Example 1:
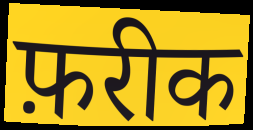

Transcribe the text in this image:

फ़रीक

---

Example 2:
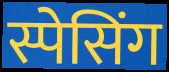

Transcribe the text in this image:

स्पेसिंग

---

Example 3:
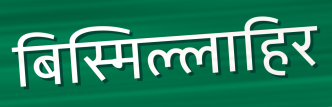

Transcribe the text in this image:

बिस्मिल्लाहिर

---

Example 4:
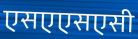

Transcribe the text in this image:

एसएएसएसी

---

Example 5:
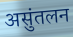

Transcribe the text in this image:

असुंतलन